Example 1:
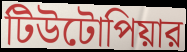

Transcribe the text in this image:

টিউটোপিয়ার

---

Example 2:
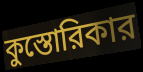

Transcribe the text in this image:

কুস্তোরিকার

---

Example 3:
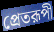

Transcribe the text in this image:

প্রেতরূপী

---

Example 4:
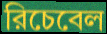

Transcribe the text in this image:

রিচেবেল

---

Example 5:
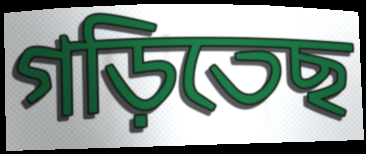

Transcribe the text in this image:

গড়িতেছ